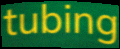
tubing